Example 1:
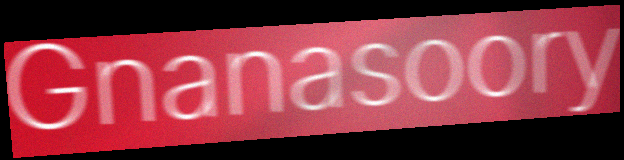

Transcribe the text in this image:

Gnanasoory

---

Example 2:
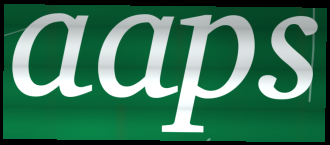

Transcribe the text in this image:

aaps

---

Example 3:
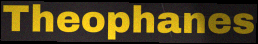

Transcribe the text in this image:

Theophanes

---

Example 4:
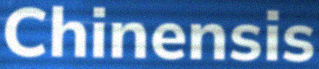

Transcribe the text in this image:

Chinensis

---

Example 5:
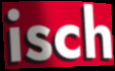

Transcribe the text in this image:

isch